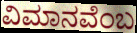
ವಿಮಾನವೆಂಬ